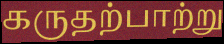
கருதற்பாற்று